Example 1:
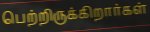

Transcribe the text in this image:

பெற்றிருக்கிறார்கள்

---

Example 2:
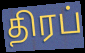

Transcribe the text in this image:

திரப்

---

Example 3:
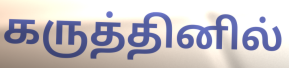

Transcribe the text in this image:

கருத்தினில்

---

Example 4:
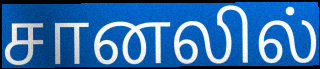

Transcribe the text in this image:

சானலில்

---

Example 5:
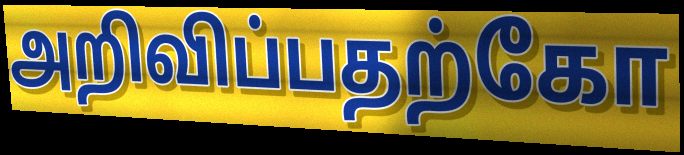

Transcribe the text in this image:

அறிவிப்பதற்கோ